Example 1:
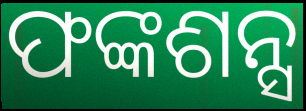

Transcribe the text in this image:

ଫଙ୍କଶନ୍ସ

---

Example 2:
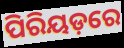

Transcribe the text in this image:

ପିରିୟଡ଼ରେ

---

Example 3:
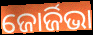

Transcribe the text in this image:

ଜୋର୍ଜିଭା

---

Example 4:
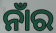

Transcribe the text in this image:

ନାଁର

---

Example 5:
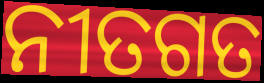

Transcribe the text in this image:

ନୀତଗତ